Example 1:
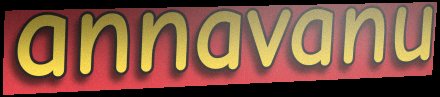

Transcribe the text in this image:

annavanu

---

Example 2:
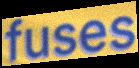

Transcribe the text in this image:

fuses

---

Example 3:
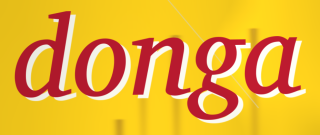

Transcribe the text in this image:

donga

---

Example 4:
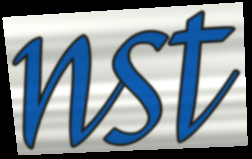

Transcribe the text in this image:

nst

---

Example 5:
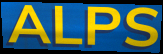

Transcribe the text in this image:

ALPS